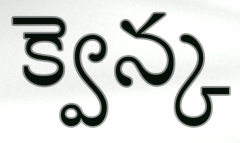
క్వెన్క